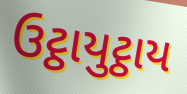
ઉટ્ઠાયુટ્ઠાય